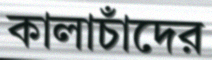
কালাচাঁদের